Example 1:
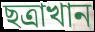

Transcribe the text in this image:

ছত্রাখান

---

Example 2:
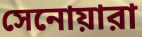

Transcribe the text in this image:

সেনোয়ারা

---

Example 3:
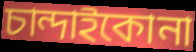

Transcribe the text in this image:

চান্দাইকোনা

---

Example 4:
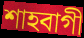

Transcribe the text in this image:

শাহবাগী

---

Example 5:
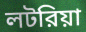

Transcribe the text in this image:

লটরিয়া